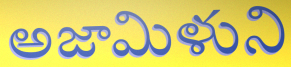
అజామిళుని